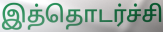
இத்தொடர்ச்சி